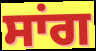
ਸਾਂਗ